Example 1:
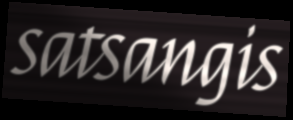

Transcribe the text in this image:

satsangis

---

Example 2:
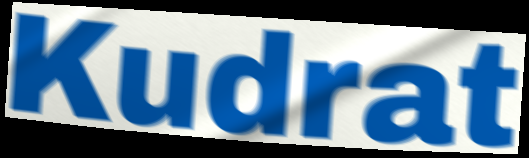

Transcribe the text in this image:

Kudrat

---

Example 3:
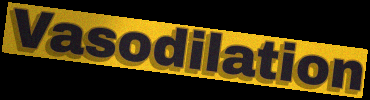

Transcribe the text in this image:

Vasodilation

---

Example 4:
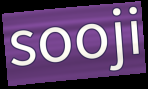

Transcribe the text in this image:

sooji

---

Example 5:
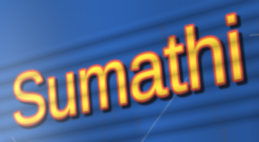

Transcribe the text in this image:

Sumathi